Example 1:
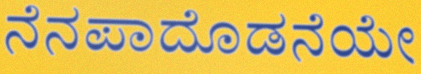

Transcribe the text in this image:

ನೆನಪಾದೊಡನೆಯೇ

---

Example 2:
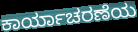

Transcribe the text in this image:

ಕಾರ್ಯಾಚರಣೆಯ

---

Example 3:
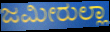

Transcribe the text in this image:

ಜಮೀರುಲ್ಲಾ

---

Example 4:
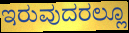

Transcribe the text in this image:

ಇರುವುದರಲ್ಲೂ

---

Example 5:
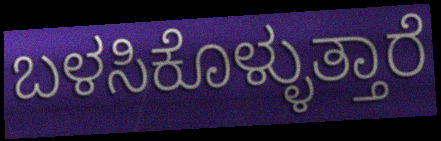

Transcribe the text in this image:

ಬಳಸಿಕೊಳ್ಳುತ್ತಾರೆ